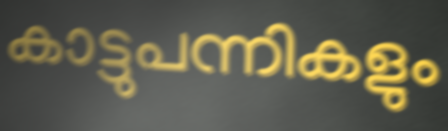
കാട്ടുപന്നികളും